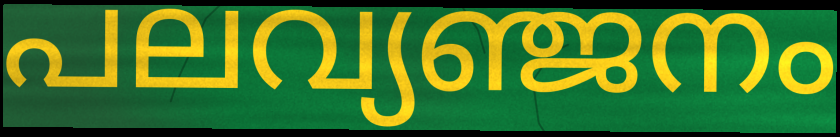
പലവ്യഞ്ജനം